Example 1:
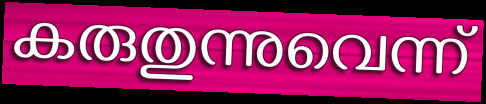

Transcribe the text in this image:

കരുതുന്നുവെന്ന്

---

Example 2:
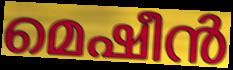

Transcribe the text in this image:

മെഷീൻ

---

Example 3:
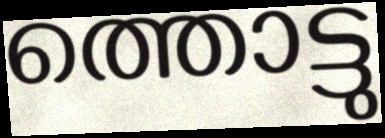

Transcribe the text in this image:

ത്തൊട്ടു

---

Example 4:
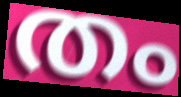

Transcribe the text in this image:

തം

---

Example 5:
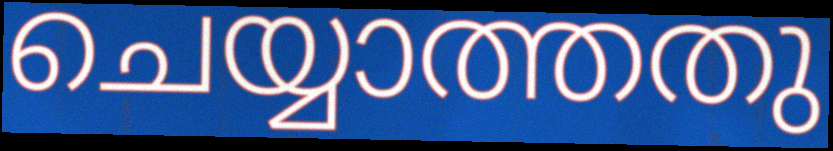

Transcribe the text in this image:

ചെയ്യാത്തതു